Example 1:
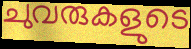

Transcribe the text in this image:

ചുവരുകളുടെ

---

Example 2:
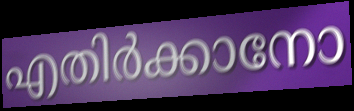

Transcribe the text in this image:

എതിർക്കാനോ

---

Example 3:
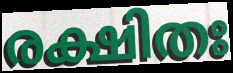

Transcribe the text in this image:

രക്ഷിതഃ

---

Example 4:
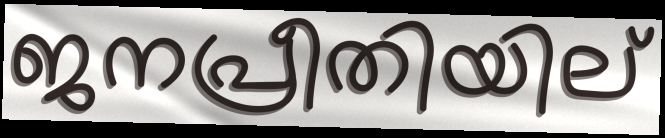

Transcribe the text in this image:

ജനപ്രീതിയില്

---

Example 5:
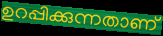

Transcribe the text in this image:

ഉറപ്പിക്കുന്നതാണ്